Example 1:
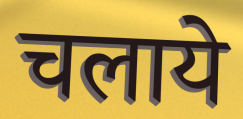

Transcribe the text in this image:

चलाये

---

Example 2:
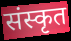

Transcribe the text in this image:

संस्कृत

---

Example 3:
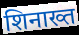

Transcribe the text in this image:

शिनाख्त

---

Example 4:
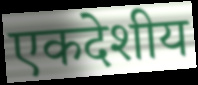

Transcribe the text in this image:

एकदेशीय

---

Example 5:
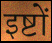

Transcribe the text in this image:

इष्टों